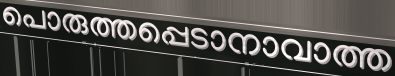
പൊരുത്തപ്പെടാനാവാത്ത